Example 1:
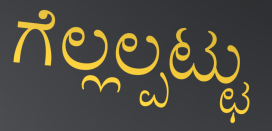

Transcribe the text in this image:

ಗೆಲ್ಲಲ್ಪಟ್ಟು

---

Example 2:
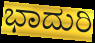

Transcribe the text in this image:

ಭಾದುರಿ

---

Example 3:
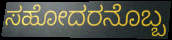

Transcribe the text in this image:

ಸಹೋದರನೊಬ್ಬ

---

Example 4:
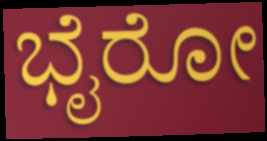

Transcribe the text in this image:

ಭೈರೋ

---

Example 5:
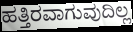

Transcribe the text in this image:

ಹತ್ತಿರವಾಗುವುದಿಲ್ಲ